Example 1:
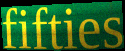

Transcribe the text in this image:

fifties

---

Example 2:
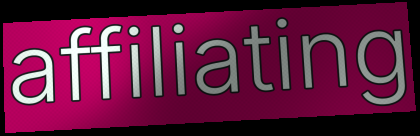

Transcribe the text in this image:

affiliating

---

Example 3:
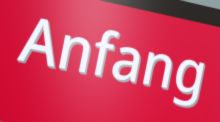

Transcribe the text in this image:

Anfang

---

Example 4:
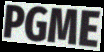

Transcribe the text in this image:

PGME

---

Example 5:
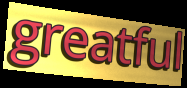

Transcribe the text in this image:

greatful